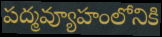
పద్మవ్యూహంలోనికి